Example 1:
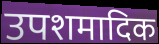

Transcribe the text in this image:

उपशमादिक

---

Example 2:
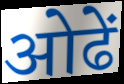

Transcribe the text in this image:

ओढें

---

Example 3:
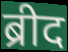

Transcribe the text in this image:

ब्रीद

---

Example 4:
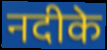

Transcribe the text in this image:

नदीके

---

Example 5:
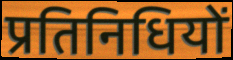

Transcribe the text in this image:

प्रतिनिधियों